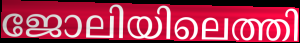
ജോലിയിലെത്തി